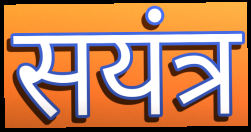
सयंत्र